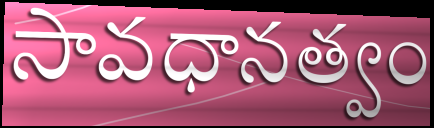
సావధానత్వం